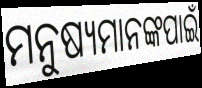
ମନୁଷ୍ୟମାନଙ୍କପାଇଁ